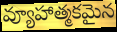
వ్యూహాత్మకమైన